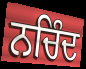
ਨਚਿੰਦ